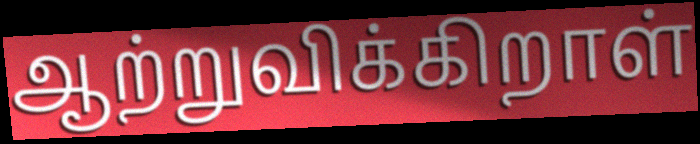
ஆற்றுவிக்கிறாள்